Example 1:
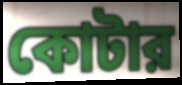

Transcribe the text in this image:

কোটার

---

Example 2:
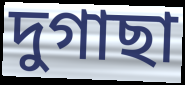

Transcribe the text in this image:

দুগাছা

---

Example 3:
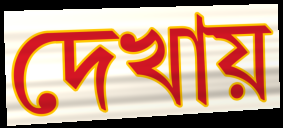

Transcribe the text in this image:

দেখায়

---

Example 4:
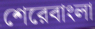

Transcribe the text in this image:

শেরেবাংলা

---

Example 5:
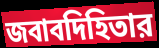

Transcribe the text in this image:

জবাবদিহিতার